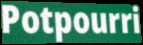
Potpourri